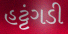
હટ્ટંગડી